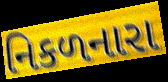
નિકળનારા